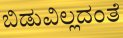
ಬಿಡುವಿಲ್ಲದಂತೆ